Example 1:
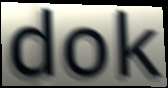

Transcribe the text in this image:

dok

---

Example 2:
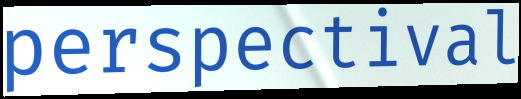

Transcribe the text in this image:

perspectival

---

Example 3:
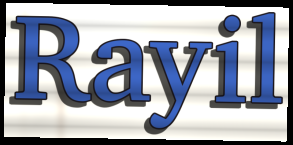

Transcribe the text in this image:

Rayil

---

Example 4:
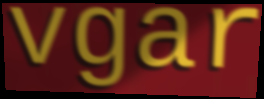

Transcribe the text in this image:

vgar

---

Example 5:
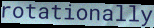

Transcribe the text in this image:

rotationally